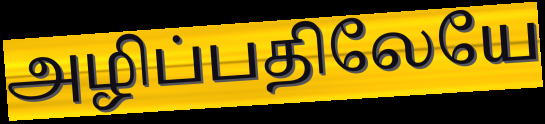
அழிப்பதிலேயே